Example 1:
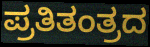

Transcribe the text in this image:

ಪ್ರತಿತಂತ್ರದ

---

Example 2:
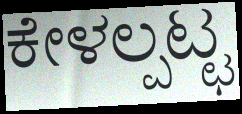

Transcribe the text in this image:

ಕೇಳಲ್ಪಟ್ಟ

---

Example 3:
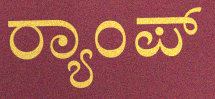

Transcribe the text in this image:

ರ‍್ಯಾಂಪ್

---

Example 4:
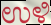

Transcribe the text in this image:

ಉಳಿ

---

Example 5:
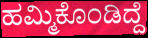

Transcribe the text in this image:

ಹಮ್ಮಿಕೊಂಡಿದ್ದೆ